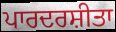
ਪਾਰਦਰਸ਼ੀਤਾ